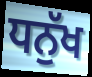
ਧਨੁੱਖ